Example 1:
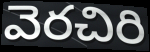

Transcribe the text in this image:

వెరచిరి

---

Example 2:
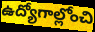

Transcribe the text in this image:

ఉద్యోగాల్లోంచి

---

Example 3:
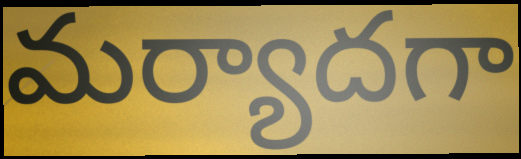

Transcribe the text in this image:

మర్యాదగా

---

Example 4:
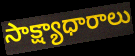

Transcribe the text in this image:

సాక్ష్యాధారాలు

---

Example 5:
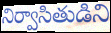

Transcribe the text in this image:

నిర్వాసితుడిని